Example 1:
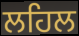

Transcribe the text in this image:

ਲਹਿਲ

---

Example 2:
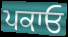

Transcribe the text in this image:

ਪਕਾਓ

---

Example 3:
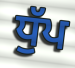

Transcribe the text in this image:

ਧੁੱਪ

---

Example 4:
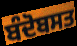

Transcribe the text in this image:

ਬੰਦੋਬਸਤ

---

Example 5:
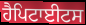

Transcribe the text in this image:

ਹੈਪਿਟਾਈਟਸ